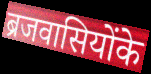
ब्रजवासियोंके